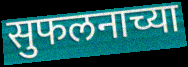
सुफलनाच्या